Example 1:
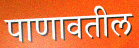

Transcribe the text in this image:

पाणावतील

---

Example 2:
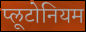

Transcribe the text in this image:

प्लूटोनियम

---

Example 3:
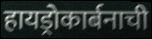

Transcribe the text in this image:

हायड्रोकार्बनाची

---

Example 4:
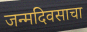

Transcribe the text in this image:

जन्मदिवसाचा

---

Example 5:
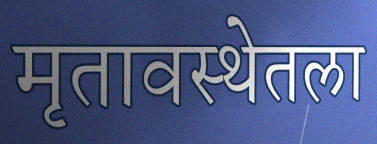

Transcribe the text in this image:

मृतावस्थेतला